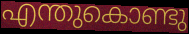
എന്തുകൊണ്ടു